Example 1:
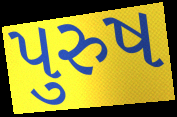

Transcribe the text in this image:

પુરુષ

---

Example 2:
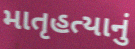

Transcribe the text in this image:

માતૃહત્યાનું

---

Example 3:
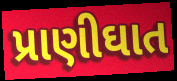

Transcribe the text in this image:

પ્રાણીઘાત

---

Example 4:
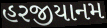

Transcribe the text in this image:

હરજીયાનમ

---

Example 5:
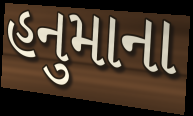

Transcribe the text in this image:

હનુમાના